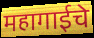
महागाईचे